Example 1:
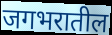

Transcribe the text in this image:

जगभरातील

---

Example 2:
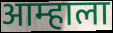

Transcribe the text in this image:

आम्हाला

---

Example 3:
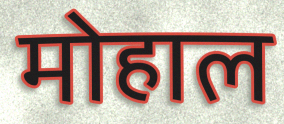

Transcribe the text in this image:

मोहाल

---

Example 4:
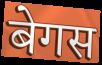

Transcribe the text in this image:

बेगस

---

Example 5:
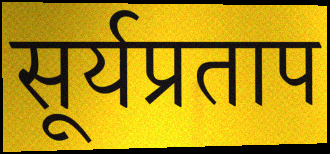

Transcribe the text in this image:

सूर्यप्रताप